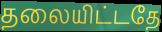
தலையிட்டதே